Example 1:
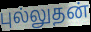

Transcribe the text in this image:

புல்லுதன்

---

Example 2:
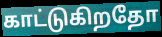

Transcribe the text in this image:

காட்டுகிறதோ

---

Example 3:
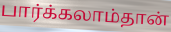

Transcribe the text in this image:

பார்க்கலாம்தான்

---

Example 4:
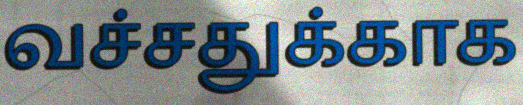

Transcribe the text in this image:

வச்சதுக்காக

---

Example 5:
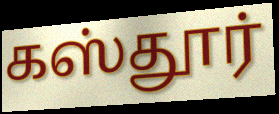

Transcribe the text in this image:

கஸ்தூர்